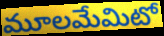
మూలమేమిటో